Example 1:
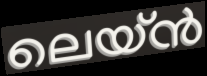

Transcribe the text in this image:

ലെയ്ൻ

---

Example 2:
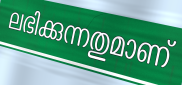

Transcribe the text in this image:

ലഭിക്കുന്നതുമാണ്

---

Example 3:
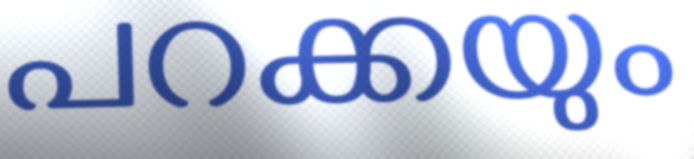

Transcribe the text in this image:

പറക്കയും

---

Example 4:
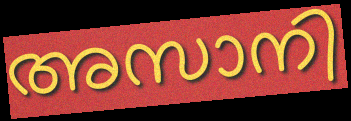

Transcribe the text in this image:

അസാനി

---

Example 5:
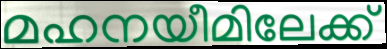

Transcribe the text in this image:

മഹനയീമിലേക്ക്